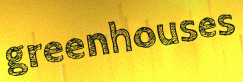
greenhouses